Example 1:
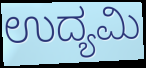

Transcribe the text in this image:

ಉದ್ಯಮಿ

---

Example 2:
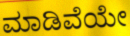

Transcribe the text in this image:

ಮಾಡಿವೆಯೇ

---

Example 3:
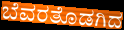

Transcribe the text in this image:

ಬೆವರತೊಡಗಿದ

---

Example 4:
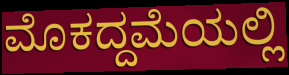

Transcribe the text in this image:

ಮೊಕದ್ದಮೆಯಲ್ಲಿ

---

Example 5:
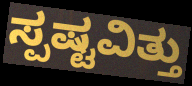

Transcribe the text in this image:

ಸ್ಪಷ್ಟವಿತ್ತು